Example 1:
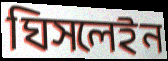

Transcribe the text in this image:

ঘিসলেইন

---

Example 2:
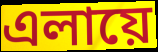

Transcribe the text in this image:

এলায়ে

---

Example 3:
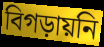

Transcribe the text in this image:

বিগড়ায়নি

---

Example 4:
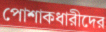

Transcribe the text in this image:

পোশাকধারীদের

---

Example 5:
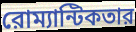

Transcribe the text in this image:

রোম্যান্টিকতার